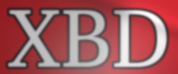
XBD